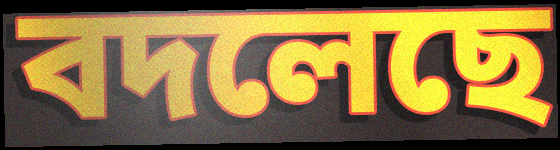
বদলেছে